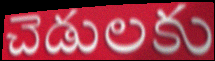
చెడులకు